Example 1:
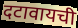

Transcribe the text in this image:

दटावायची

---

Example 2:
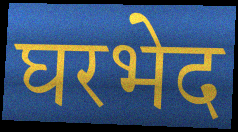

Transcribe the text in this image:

घरभेद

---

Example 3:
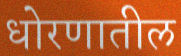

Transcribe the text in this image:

धोरणातील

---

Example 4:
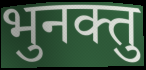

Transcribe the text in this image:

भुनक्तु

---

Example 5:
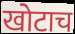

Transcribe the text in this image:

खोटाच